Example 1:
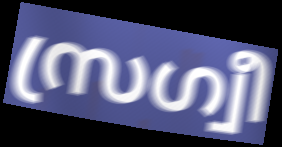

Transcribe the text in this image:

സ്രഗ്വീ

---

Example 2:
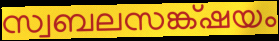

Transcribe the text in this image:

സ്വബലസങ്ക്ഷയം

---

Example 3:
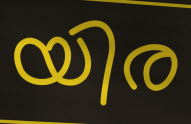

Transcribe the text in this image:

യിര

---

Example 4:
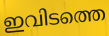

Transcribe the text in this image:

ഇവിടത്തെ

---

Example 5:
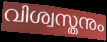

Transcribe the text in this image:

വിശ്വസ്തനും